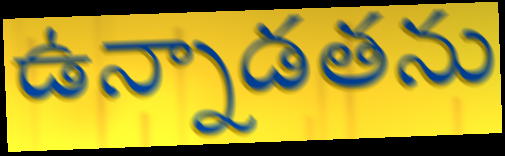
ఉన్నాడతను